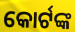
କୋର୍ଟଙ୍କ